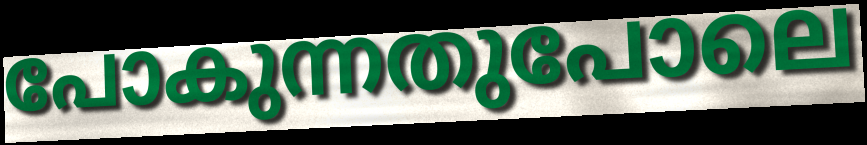
പോകുന്നതുപോലെ